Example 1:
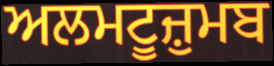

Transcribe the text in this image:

ਅਲਮਟੂਜ਼ੁਮਬ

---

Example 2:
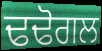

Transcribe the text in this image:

ਢਢੋਗਲ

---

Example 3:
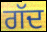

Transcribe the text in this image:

ਗੱਦ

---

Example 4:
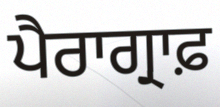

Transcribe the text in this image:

ਪੈਰਾਗ੍ਰਾਫ਼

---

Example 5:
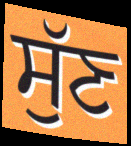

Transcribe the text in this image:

ਸੁੱਣ